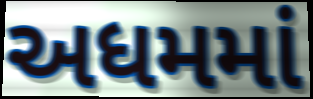
અધમમાં